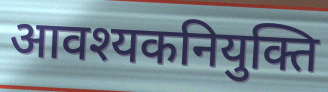
आवश्यकनियुक्ति